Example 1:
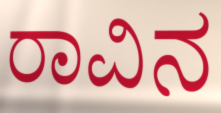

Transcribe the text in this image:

ರಾವಿನ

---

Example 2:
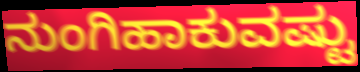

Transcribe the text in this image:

ನುಂಗಿಹಾಕುವಷ್ಟು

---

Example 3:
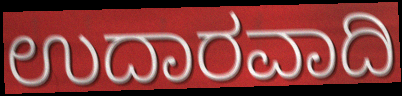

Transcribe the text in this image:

ಉದಾರವಾದಿ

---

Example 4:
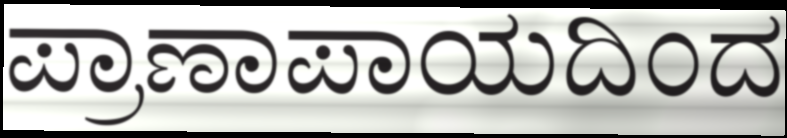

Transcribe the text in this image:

ಪ್ರಾಣಾಪಾಯದಿಂದ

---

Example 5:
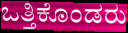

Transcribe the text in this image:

ಒತ್ತಿಕೊಂಡರು